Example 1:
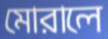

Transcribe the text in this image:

মোরালে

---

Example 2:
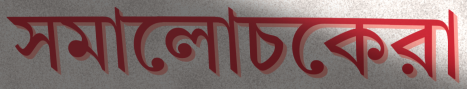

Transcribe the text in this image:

সমালোচকেরা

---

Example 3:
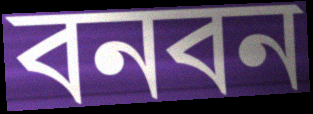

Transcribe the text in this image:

বনবন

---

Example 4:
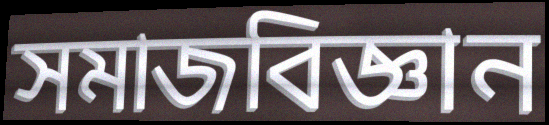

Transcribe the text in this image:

সমাজবিজ্ঞান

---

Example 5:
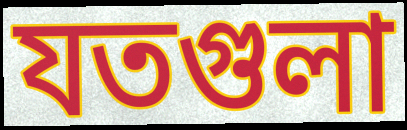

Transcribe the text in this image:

যতগুলা